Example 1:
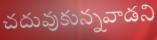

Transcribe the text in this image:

చదువుకున్నవాడని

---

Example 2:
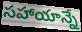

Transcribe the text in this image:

సహాయాన్నే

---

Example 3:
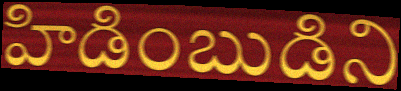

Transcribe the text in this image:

హిడింబుడిని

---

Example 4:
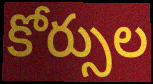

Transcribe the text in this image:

కోర్సుల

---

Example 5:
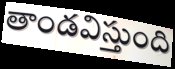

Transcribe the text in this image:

తాండవిస్తుంది